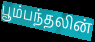
பூம்பந்தலின்